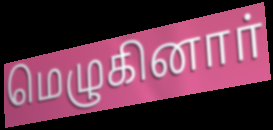
மெழுகினார்